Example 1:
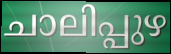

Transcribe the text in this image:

ചാലിപ്പുഴ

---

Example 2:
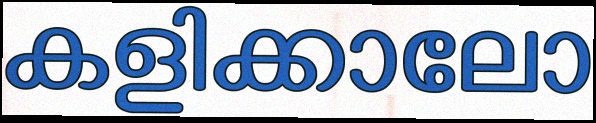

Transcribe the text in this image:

കളിക്കാലോ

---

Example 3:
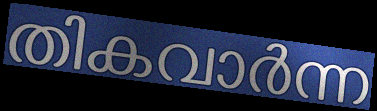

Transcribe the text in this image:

തികവാർന്ന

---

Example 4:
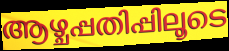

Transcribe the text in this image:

ആഴ്ചപ്പതിപ്പിലൂടെ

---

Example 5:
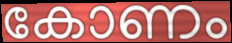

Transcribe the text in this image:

കോണം